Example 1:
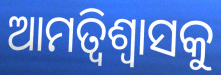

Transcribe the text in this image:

ଆମତ୍ବିଶ୍ୱାସକୁ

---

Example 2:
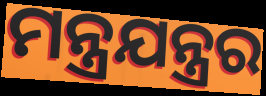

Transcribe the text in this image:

ମନ୍ତ୍ରଯନ୍ତ୍ରର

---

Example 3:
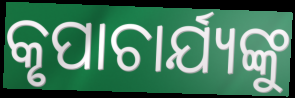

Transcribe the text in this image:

କୃପାଚାର୍ଯ୍ୟଙ୍କୁ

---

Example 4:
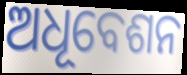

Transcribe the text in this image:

ଅଧୂବେଶନ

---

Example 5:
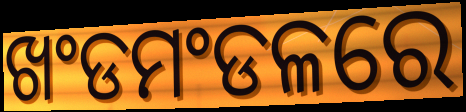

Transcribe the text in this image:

ଖଂଡମଂଡଳରେ